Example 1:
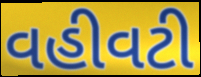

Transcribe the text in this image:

વહીવટી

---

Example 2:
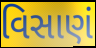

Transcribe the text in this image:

વિસાણં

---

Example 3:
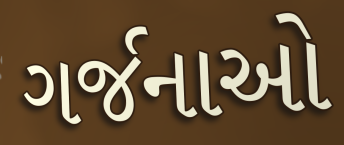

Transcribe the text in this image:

ગર્જનાઓ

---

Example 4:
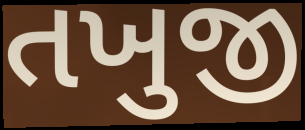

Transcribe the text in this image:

તખુજી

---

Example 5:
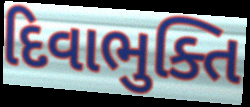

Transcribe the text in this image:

દિવાભુક્તિ